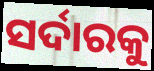
ସର୍ଦାରକୁ